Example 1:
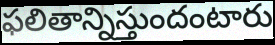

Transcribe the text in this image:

ఫలితాన్నిస్తుందంటారు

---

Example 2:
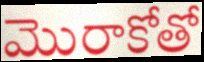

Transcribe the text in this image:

మొరాకోతో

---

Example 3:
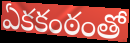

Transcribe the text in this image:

ఏకకంఠంతో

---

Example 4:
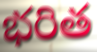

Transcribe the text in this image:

భరిత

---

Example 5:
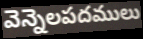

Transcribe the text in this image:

వెన్నెలపదములు